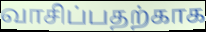
வாசிப்பதற்காக